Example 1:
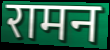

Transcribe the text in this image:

रामन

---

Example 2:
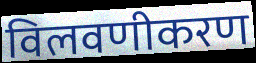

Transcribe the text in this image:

विलवणीकरण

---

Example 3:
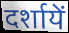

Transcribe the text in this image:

दर्शायें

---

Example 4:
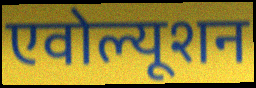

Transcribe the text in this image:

एवोल्यूशन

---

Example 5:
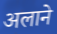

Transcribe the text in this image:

अलाने